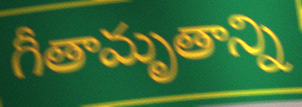
గీతామృతాన్ని